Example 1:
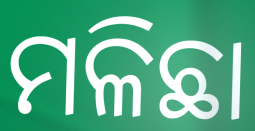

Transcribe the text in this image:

ମଳିଛା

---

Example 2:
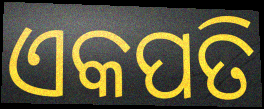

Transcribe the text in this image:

ଏକପତି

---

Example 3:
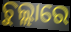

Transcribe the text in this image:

ଚୁଲ୍ଲାରେ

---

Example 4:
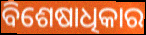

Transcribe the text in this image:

ବିଶେଷାଧିକାର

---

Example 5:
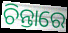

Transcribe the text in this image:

ଚିନ୍ତାରେ